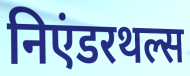
निएंडरथल्स